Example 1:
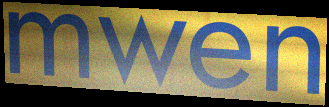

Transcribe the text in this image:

mwen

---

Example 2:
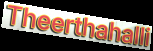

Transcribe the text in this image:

Theerthahalli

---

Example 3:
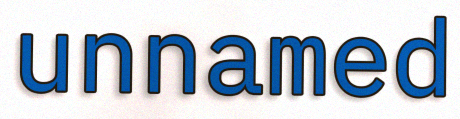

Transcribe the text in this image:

unnamed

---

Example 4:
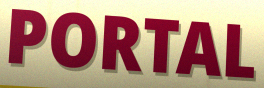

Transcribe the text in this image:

PORTAL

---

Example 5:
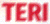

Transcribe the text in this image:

TERI